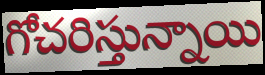
గోచరిస్తున్నాయి